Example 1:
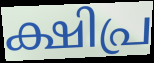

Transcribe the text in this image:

ക്ഷിപ്ര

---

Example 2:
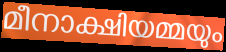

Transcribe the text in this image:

മീനാക്ഷിയമ്മയും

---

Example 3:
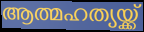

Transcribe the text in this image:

ആത്മഹത്യയ്ക്ക്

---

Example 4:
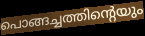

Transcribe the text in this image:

പൊങ്ങച്ചത്തിന്റെയും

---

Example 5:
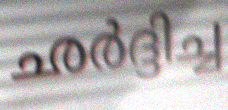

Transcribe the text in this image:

ഛർദ്ദിച്ച